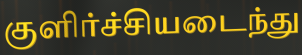
குளிர்ச்சியடைந்து